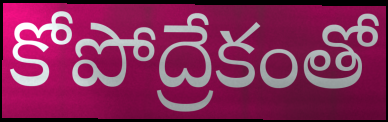
కోపోద్రేకంతో